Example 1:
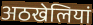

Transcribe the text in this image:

अठखेलियां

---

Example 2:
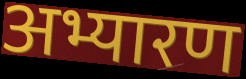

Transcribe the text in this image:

अभ्यारण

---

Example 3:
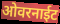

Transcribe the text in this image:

ओवरनाईट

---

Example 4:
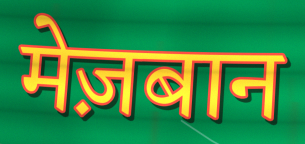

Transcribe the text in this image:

मेज़बान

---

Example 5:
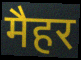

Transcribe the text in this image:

मैहर